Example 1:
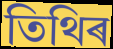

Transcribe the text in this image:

তিথিৰ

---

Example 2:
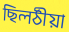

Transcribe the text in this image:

ছিলঠীয়া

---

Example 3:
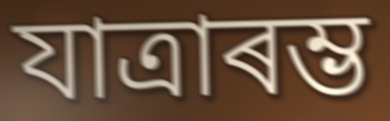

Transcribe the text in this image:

যাত্ৰাৰম্ভ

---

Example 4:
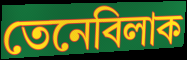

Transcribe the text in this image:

তেনেবিলাক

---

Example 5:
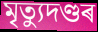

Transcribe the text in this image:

মৃত্যুদণ্ডৰ